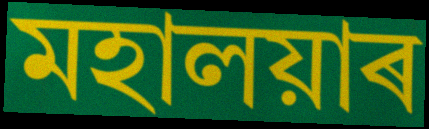
মহালয়াৰ